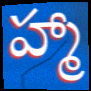
హ్మా